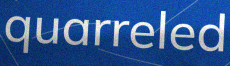
quarreled